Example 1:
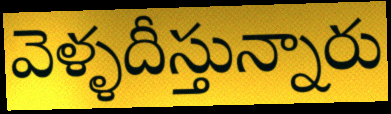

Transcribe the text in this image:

వెళ్ళదీస్తున్నారు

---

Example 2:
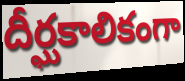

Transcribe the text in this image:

దీర్ఘకాలికంగా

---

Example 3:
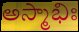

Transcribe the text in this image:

అస్మాభిః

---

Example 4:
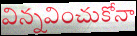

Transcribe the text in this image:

విన్నవించుకోనా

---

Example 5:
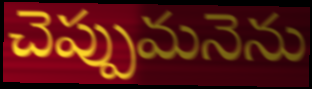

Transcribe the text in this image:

చెప్పుమనెను